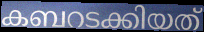
കബറടക്കിയത്